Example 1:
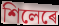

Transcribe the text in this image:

শিলেৰে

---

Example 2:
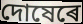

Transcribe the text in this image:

দোষেৰে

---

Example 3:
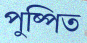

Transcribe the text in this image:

পুষ্পিত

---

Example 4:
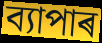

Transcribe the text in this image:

ব্যাপাৰ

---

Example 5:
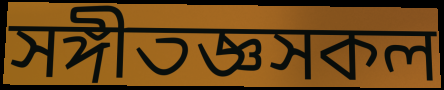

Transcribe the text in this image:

সঙ্গীতজ্ঞসকল